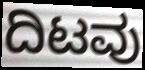
ದಿಟವು